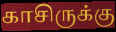
காசிருக்கு